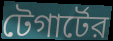
টেগার্টের